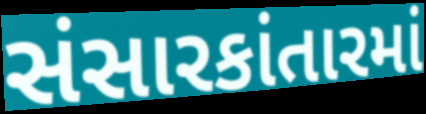
સંસારકાંતારમાં